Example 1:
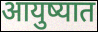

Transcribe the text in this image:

आयुष्यात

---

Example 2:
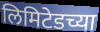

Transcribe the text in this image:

लिमिटेडच्या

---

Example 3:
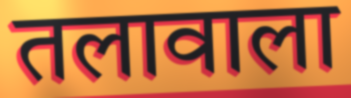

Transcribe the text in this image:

तलावाला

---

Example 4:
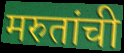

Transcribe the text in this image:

मरुतांची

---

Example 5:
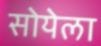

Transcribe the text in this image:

सोयेला